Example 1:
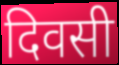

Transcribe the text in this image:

दिवसी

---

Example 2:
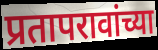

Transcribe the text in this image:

प्रतापरावांच्या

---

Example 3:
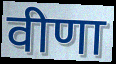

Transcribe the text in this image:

वीणा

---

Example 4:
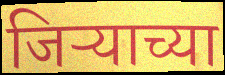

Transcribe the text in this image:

जिऱ्याच्या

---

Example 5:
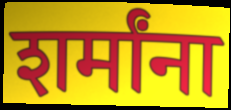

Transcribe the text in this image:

शर्मांना